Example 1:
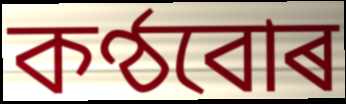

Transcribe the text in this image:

কণ্ঠবোৰ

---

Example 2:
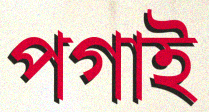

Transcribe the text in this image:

পগাই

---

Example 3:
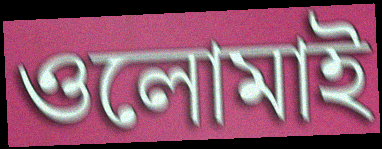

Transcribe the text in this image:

ওলোমাই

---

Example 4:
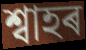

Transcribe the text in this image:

শ্বাহৰ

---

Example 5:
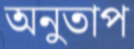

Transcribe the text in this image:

অনুতাপ